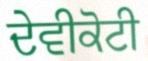
ਦੇਵੀਕੋਟੀ